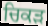
ਚਿਕੜ